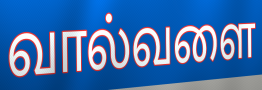
வால்வளை